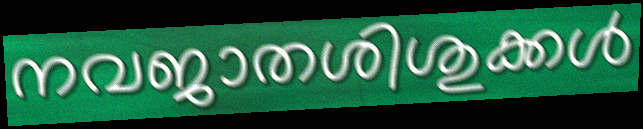
നവജാതശിശുക്കൾ